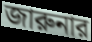
জারুনার